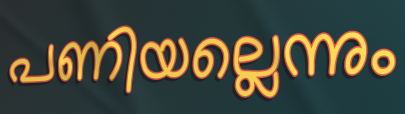
പണിയല്ലെന്നും